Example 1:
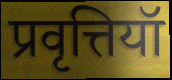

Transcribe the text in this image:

प्रवृत्तियॉ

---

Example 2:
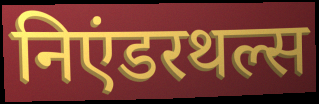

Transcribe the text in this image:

निएंडरथल्स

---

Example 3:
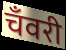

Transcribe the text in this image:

चँवरी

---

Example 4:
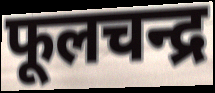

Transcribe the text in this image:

फूलचन्द्र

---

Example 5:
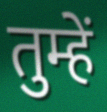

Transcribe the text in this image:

तुम्हें